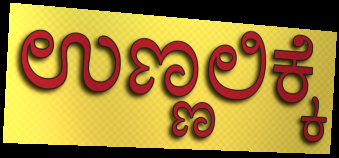
ಉಣ್ಣಲಿಕ್ಕೆ